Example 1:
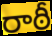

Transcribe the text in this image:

రాఠీ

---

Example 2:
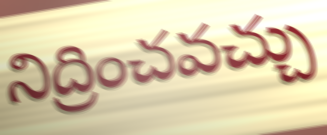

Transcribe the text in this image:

నిద్రించవచ్చు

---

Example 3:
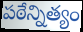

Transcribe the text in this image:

పఠేన్నిత్యం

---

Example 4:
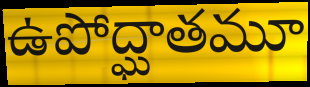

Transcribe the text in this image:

ఉపోద్ఘాతమూ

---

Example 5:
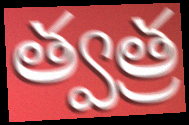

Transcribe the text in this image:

త్వత్ర